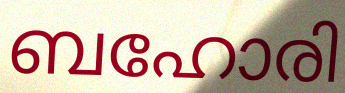
ബഹോരി